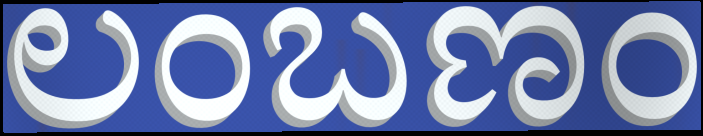
ಲಂಬಣಂ